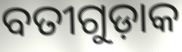
ବତୀଗୁଡ଼ାକ